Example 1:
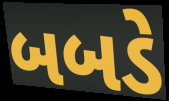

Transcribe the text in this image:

બબડે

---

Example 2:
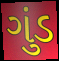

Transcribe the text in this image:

ગુંડ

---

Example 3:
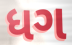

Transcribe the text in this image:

ધગ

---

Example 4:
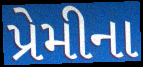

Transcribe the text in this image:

પ્રેમીના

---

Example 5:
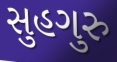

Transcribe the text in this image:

સુહગુરુ